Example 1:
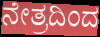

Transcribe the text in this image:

ನೇತ್ರದಿಂದ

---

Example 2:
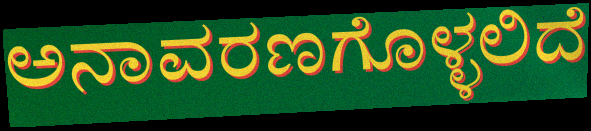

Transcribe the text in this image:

ಅನಾವರಣಗೊಳ್ಳಲಿದೆ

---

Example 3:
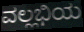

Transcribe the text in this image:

ವಲ್ಲಭಿಯ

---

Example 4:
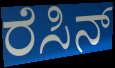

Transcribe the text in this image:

ರೆಸಿನ್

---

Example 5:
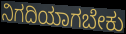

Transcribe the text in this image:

ನಿಗದಿಯಾಗಬೇಕು